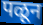
पळून